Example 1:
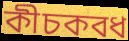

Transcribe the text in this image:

কীচকবধ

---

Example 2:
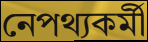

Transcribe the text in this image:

নেপথ্যকর্মী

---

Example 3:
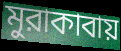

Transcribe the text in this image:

মুরাকাবায়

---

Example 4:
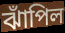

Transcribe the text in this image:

ঝাঁপিল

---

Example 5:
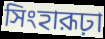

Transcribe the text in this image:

সিংহারূঢ়া